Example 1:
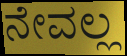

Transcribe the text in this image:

ನೇವಲ್ಲ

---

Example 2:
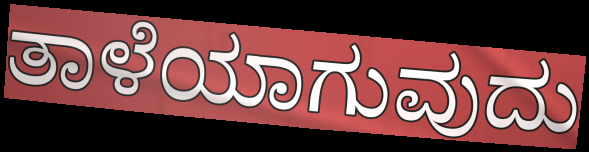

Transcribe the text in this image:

ತಾಳೆಯಾಗುವುದು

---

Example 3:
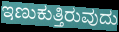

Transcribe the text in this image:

ಇಣುಕುತ್ತಿರುವುದು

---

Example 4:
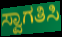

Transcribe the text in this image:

ಸ್ವಾಗತಿಸಿ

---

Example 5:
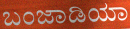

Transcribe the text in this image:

ಬಂಜಾಡಿಯಾ